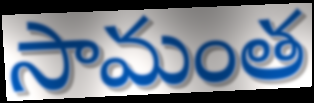
సామంత